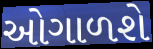
ઓગાળશે